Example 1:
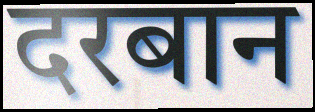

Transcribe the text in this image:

दरबान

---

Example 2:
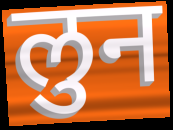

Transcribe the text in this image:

लुन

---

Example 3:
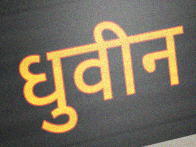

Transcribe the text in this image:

धुवीन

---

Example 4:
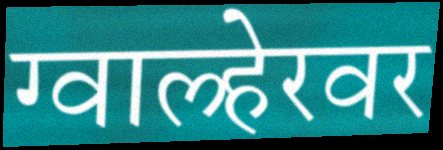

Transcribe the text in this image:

ग्वाल्हेरवर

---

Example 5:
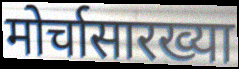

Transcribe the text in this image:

मोर्चासारख्या